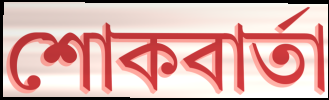
শোকবার্তা